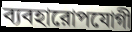
ব্যবহারোপযোগী